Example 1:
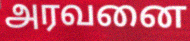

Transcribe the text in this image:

அரவனை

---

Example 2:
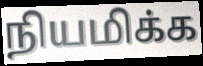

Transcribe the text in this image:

நியமிக்க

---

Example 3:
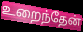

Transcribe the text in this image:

உறைந்தேன்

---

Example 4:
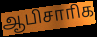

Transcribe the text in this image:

ஆபிசாரிக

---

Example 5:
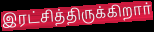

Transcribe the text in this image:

இரட்சித்திருக்கிறார்